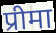
प्रीमा